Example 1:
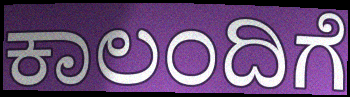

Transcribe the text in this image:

ಕಾಲಂದಿಗೆ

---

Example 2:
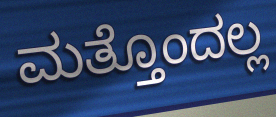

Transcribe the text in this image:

ಮತ್ತೊಂದಲ್ಲ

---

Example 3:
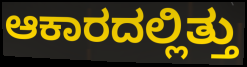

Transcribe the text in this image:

ಆಕಾರದಲ್ಲಿತ್ತು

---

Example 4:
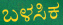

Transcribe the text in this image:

ಬಳಸಿಕ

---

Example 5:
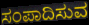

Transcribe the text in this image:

ಸಂಪಾದಿಸುವ